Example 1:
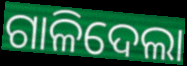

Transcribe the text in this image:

ଗାଳିଦେଲା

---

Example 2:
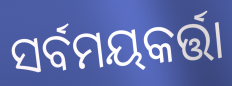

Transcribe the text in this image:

ସର୍ବମୟକର୍ତ୍ତା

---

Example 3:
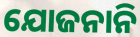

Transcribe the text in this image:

ଯୋଜନାନି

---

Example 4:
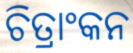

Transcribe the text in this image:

ଚିତ୍ରାଂକନ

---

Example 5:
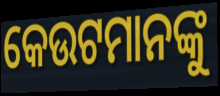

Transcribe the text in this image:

କେଉଟମାନଙ୍କୁ